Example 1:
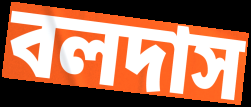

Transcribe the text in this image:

বলদাস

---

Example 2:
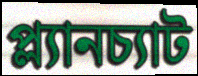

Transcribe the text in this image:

প্ল্যানচ্যাট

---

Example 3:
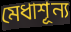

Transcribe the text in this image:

মেধাশূন্য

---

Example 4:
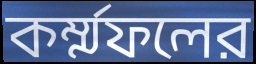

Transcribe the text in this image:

কর্ম্মফলের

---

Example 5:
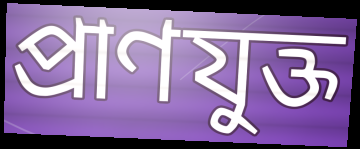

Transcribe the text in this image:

প্রাণযুক্ত